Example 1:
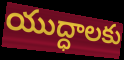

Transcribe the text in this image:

యుద్ధాలకు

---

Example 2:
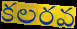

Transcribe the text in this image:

కలరవ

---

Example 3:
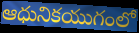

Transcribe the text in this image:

ఆధునికయుగంలో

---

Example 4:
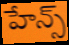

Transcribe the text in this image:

హేన్స్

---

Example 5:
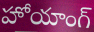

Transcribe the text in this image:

హోయాంగ్